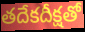
తదేకదీక్షతో